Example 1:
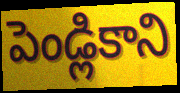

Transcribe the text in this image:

పెండ్లికాని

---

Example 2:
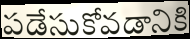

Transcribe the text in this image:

పడేసుకోవడానికి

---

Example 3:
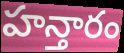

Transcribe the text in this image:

హన్తారం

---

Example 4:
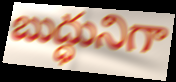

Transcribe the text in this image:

బుద్ధునిగా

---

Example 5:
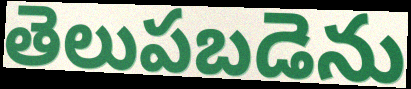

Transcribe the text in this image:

తెలుపబడెను